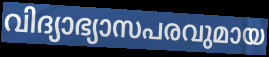
വിദ്യാഭ്യാസപരവുമായ